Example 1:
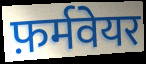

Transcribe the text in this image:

फ़र्मवेयर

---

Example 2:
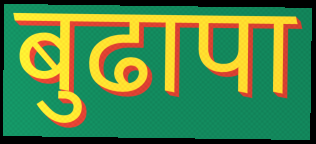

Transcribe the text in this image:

बुढापा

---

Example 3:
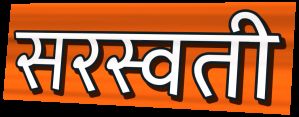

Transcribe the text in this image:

सरस्‍वती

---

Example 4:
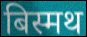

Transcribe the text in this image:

बिस्मथ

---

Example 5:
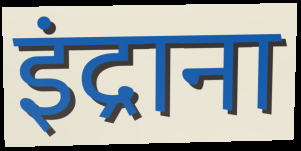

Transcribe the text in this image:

इंद्राना